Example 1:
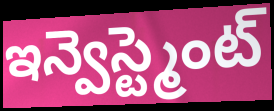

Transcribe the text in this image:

ఇన్వెస్ట్మెంట్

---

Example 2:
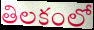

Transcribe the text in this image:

తిలకంలో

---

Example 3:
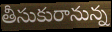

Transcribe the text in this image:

తీసుకురానున్న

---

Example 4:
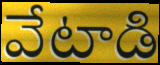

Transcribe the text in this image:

వేటాడి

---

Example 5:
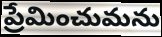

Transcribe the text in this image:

ప్రేమించుమను